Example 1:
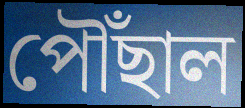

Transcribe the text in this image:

পৌঁছাল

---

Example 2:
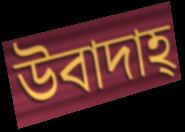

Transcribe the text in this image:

উবাদাহ্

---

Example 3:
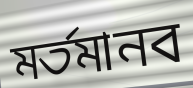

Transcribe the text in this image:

মর্তমানব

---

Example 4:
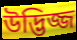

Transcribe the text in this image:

উদ্ভিজ্জ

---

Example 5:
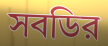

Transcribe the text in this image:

সবডির